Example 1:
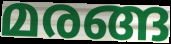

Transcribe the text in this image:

മരങ്ങ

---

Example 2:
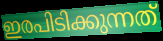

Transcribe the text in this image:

ഇരപിടിക്കുന്നത്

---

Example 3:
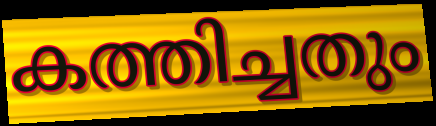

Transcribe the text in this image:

കത്തിച്ചതും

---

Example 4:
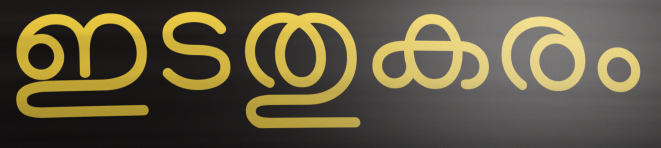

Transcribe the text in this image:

ഇടതുകരം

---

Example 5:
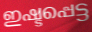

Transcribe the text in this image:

ഇഷ്ടപ്പെട്ട